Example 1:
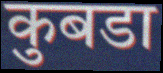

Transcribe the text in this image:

कुबडा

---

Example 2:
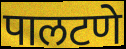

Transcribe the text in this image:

पालटणे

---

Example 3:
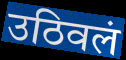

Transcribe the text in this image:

उठिवलं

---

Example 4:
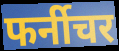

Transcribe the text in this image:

फर्नीचर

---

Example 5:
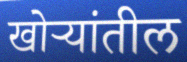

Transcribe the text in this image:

खोऱ्यांतील